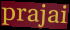
prajai